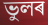
ভুলৰ